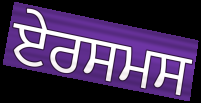
ਏਰਸਮਸ